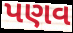
પણવ